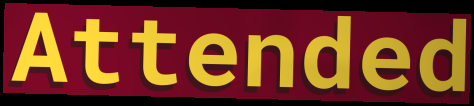
Attended